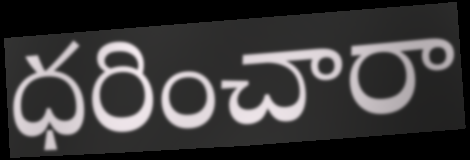
ధరించారా